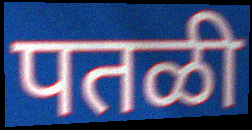
पतळी